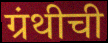
ग्रंथीची